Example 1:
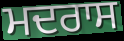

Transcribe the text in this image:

ਮਦਰਾਸ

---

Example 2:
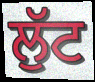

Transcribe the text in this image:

ਲੁੱਟ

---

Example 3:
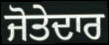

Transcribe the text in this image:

ਜੋਤੇਦਾਰ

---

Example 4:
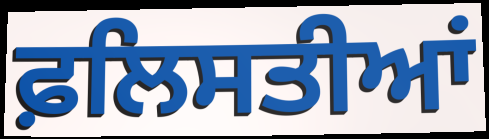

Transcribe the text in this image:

ਫ਼ਲਿਸਤੀਆਂ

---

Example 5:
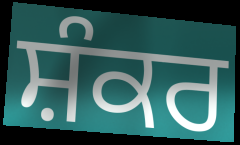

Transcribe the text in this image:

ਸ਼ੰਕਰ